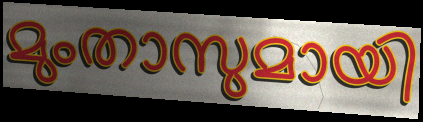
മുംതാസുമായി